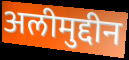
अलीमुद्दीन